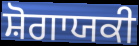
ਸ਼ੋਗਾਯਕੀ